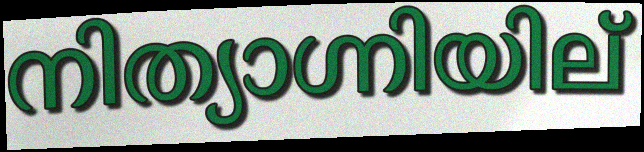
നിത്യാഗ്നിയില്